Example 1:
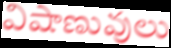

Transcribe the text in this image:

విషాణువులు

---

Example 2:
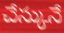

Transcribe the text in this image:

చేస్కునే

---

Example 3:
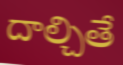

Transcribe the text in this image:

దాల్చితే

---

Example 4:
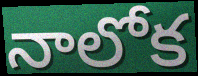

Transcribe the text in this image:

నాలోక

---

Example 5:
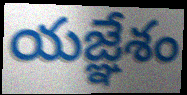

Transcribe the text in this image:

యజ్ఞేశం